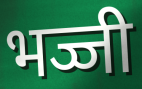
भज्जी